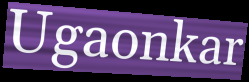
Ugaonkar